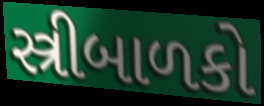
સ્ત્રીબાળકો